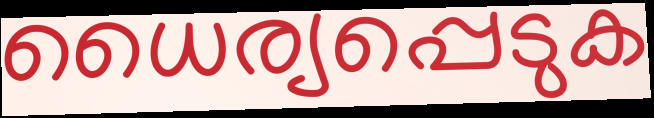
ധൈര്യപ്പെടുക